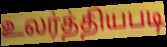
உலர்த்தியபடி